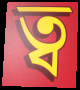
ত্ব